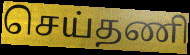
செய்தணி